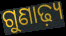
ଗୁଣାଢ଼୍ୟ